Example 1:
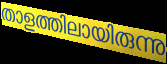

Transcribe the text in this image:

താളത്തിലായിരുന്നു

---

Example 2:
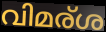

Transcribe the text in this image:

വിമര്ശ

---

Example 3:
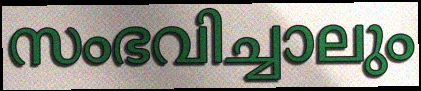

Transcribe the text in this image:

സംഭവിച്ചാലും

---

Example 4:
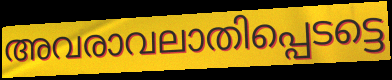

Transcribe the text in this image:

അവരാവലാതിപ്പെടട്ടെ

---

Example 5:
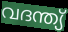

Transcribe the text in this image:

വദന്ത്യ്